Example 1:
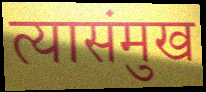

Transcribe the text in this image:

त्यासंमुख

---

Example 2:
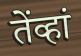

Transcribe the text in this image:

तेंव्हां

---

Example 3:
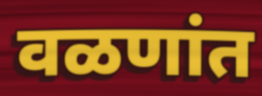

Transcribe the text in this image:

वळणांत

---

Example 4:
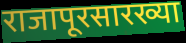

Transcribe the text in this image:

राजापूरसारख्या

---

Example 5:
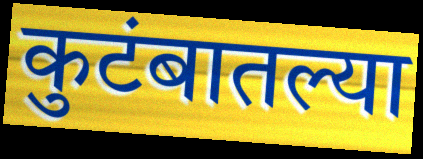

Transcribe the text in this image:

कुटंबातल्या